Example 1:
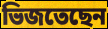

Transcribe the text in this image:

ভিজতেছেন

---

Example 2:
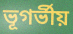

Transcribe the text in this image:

ভূগর্ভীয়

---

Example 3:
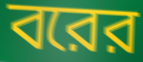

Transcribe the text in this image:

বরের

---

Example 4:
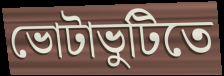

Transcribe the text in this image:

ভোটাভুটিতে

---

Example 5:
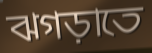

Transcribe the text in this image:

ঝগড়াতে